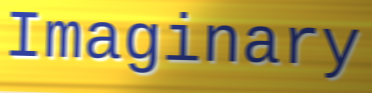
Imaginary